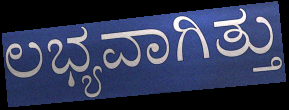
ಲಭ್ಯವಾಗಿತ್ತು